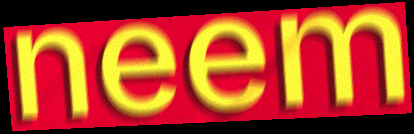
neem